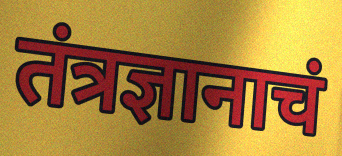
तंत्रज्ञानाचं